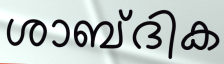
ശാബ്ദിക